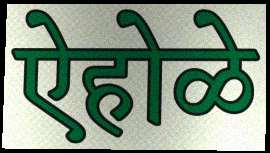
ऐहोळे